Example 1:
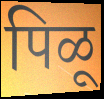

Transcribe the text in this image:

पिळू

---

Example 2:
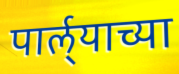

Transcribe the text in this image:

पार्ल्याच्या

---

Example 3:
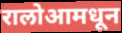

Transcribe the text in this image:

रालोआमधून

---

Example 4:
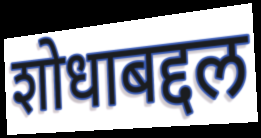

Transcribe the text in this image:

शोधाबद्दल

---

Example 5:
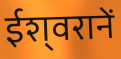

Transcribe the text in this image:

ईश्वरानें